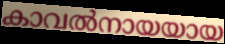
കാവൽനായയായ